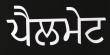
ਪੈਲਮੇਟ